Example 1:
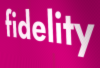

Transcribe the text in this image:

fidelity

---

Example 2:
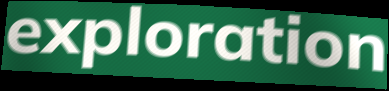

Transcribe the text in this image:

exploration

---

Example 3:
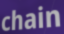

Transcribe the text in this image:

chain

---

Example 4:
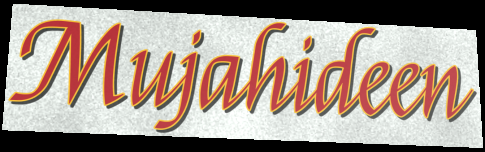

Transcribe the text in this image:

Mujahideen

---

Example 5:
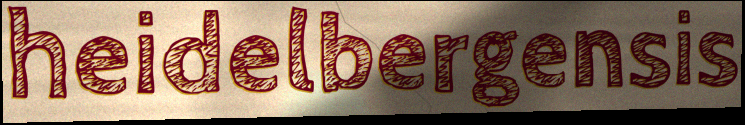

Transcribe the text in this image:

heidelbergensis